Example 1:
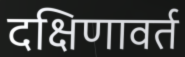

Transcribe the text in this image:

दक्षिणावर्त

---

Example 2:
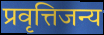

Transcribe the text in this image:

प्रवृत्तिजन्य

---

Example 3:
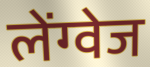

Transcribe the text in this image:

लेंग्वेज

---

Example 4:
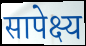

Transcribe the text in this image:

सापेक्ष्य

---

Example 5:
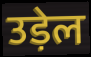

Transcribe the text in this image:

उड़ेल